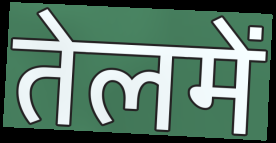
तेलमें